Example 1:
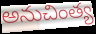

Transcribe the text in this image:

అనుచింత్య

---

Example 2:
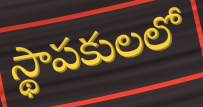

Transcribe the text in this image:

స్థాపకులలో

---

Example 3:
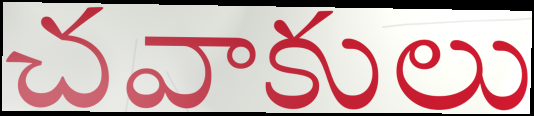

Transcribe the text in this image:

చవాకులు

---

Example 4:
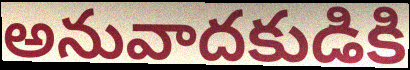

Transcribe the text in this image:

అనువాదకుడికి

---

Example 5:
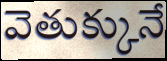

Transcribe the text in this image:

వెతుక్కునే